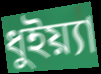
ধুইয়্যা